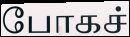
போகச்